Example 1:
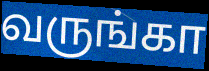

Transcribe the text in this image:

வருங்கா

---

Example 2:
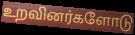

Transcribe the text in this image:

உறவினர்களோடு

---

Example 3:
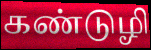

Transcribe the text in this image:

கண்டுழி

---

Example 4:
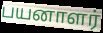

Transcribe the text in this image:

பயனாளர்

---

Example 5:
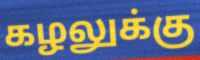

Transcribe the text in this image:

கழலுக்கு